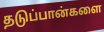
தடுப்பான்களை